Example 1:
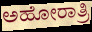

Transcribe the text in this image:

ಅಹೋರಾತ್ರಿ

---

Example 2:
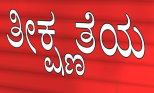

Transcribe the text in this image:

ತೀಕ್ಷ್ಣತೆಯ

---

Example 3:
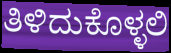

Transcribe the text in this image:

ತಿಳಿದುಕೊಳ್ಳಲಿ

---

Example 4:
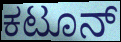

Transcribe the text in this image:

ಕಟೂನ್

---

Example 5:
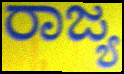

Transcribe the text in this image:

ರಾಜ್ಯ